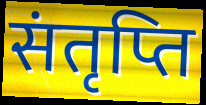
संतृप्ति